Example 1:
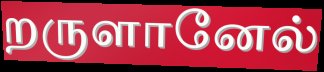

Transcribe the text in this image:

றருளானேல்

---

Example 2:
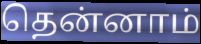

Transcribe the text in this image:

தென்னாம்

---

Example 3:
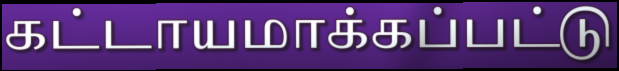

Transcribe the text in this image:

கட்டாயமாக்கப்பட்டு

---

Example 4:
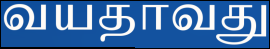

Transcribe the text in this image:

வயதாவது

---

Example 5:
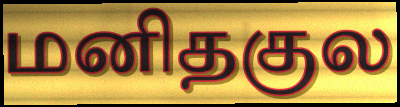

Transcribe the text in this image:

மனிதகுல